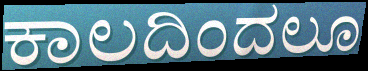
ಕಾಲದಿಂದಲೂ